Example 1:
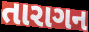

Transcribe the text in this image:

તારાગન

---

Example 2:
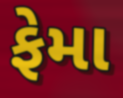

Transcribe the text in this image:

ફેમા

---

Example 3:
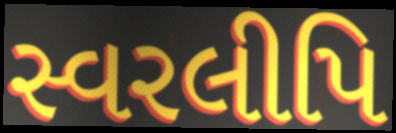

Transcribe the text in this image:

સ્વરલીપિ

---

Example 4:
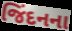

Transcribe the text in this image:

જિંદનના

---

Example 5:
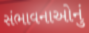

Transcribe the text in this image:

સંભાવનાઓનું